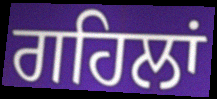
ਗਹਿਲਾਂ